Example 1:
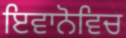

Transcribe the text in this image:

ਇਵਾਨੋਵਿਚ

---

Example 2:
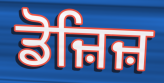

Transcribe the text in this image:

ਡੋਜ਼ਿਜ਼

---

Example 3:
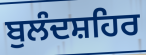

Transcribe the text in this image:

ਬੁਲੰਦਸ਼ਹਿਰ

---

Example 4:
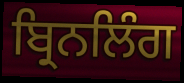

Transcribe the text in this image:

ਬ੍ਰਿਨਲਿੰਗ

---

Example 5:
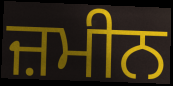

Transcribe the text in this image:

ਜ਼ਮੀਨ